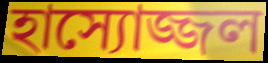
হাস্যোজ্জল